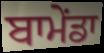
ਬਾਮੇਂਡਾ